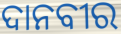
ଦାନବୀର